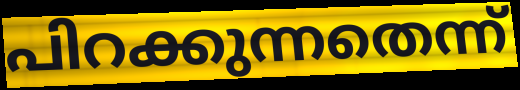
പിറക്കുന്നതെന്ന്